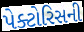
પેક્ટોરિસની